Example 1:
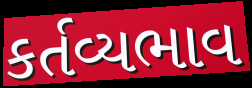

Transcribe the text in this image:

કર્તવ્યભાવ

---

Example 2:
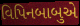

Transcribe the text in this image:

વિપિનબાબુએ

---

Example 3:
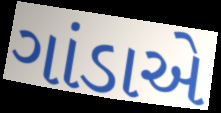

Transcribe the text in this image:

ગાંડાએ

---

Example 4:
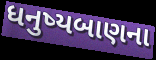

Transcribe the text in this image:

ધનુષ્યબાણના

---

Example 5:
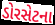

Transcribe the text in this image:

ડોરસેટના